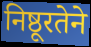
निष्ठूरतेने